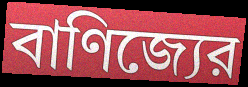
বাণিজ্যের